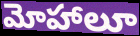
మోహాలూ